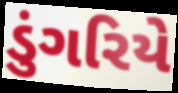
ડુંગરિયે